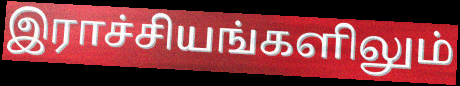
இராச்சியங்களிலும்